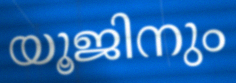
യൂജിനും